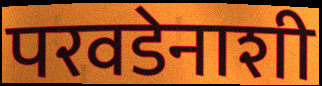
परवडेनाशी